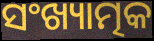
ସଂଖ୍ୟାତ୍ମକ